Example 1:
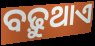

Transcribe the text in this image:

ବଢ଼ୁଥାଏ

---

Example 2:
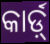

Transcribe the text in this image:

କାର୍ଡ଼୍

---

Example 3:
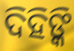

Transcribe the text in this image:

ଦିହିଙ୍କି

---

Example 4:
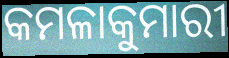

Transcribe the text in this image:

କମଳାକୁମାରୀ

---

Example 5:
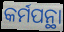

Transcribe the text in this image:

କର୍ମପନ୍ଥା